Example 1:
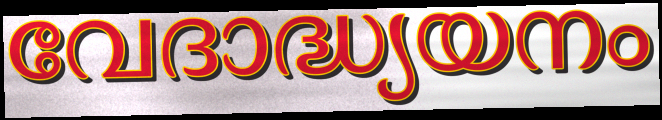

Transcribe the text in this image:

വേദാദ്ധ്യയനം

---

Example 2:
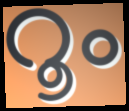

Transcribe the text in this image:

റൂം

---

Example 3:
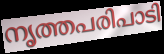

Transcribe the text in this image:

നൃത്തപരിപാടി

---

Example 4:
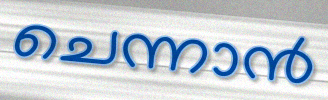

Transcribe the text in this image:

ചെന്നാൻ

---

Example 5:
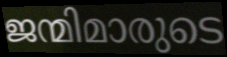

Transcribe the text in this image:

ജന്മിമാരുടെ